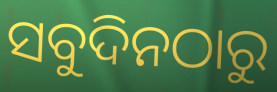
ସବୁଦିନଠାରୁ